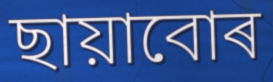
ছায়াবোৰ